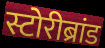
स्टोरीब्रांड